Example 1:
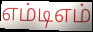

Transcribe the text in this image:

எம்டிஎம்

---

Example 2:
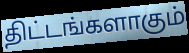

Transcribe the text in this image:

திட்டங்களாகும்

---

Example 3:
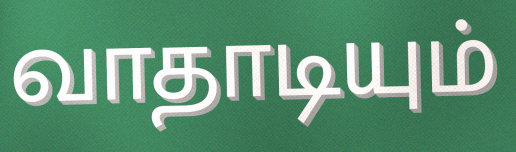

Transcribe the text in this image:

வாதாடியும்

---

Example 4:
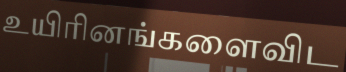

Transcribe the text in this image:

உயிரினங்களைவிட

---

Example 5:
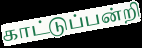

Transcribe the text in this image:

காட்டுப்பன்றி